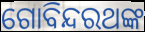
ଗୋବିନ୍ଦରଥଙ୍କ